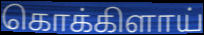
கொக்கிளாய்